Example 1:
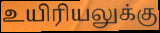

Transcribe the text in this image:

உயிரியலுக்கு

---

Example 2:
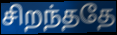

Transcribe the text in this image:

சிறந்ததே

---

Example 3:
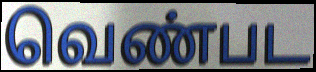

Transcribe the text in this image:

வெண்பட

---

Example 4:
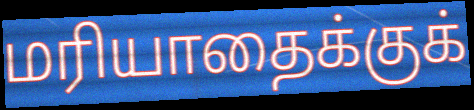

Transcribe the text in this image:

மரியாதைக்குக்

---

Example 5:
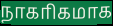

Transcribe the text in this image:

நாகரிகமாக